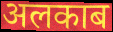
अलकाब